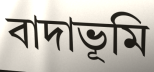
বাদাভূমি